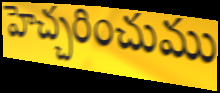
హెచ్చరించుము